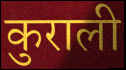
कुराली